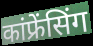
कांफ्रेंसिंग